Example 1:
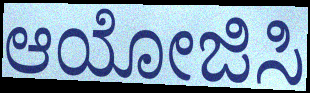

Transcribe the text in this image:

ಆಯೋಜಿಸಿ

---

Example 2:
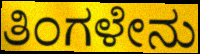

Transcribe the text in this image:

ತಿಂಗಳೇನು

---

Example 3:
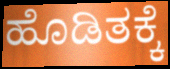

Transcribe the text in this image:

ಹೊಡಿತಕ್ಕೆ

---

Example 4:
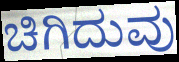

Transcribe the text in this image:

ಚಿಗಿದುವು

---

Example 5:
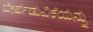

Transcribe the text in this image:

ಬೇರ್ಪಡುವಿಕೆಯನ್ನು